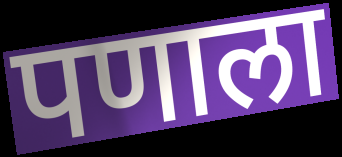
पणाला